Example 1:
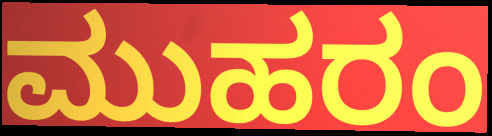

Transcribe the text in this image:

ಮುಹರಂ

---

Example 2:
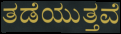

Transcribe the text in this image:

ತಡೆಯುತ್ತವೆ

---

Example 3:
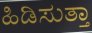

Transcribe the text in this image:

ಹಿಡಿಸುತ್ತಾ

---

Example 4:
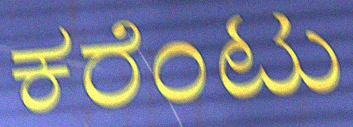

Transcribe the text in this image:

ಕರೆಂಟು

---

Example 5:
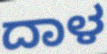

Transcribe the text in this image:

ದಾಳ